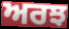
ਅਰਝ